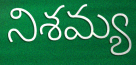
నిశమ్య